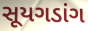
સૂયગડાંગ